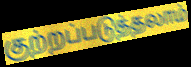
குற்றப்படுத்தலாம்